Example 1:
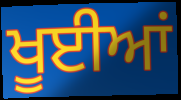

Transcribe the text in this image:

ਖੂਈਆਂ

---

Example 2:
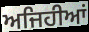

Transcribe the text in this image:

ਅਜਿਹੀਆਂ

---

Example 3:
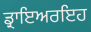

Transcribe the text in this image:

ਡ੍ਰਾਇਅਰਇਹ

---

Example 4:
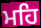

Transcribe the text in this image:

ਮਹਿ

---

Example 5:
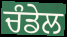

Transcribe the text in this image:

ਚੰਡੇਲ